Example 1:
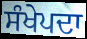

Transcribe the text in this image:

ਸੰਖੇਪਦਾ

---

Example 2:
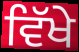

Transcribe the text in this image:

ਵਿੱਖੇ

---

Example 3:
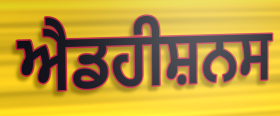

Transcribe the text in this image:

ਐਡਹੀਸ਼ਨਸ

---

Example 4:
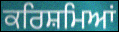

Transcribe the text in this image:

ਕਰਿਸ਼ਮਿਆਂ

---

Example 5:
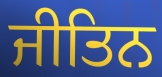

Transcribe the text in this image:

ਜੀਤਿਨ